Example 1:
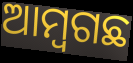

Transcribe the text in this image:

ଆମ୍ବଗଛ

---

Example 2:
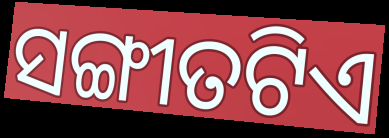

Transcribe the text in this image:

ସଙ୍ଗୀତଟିଏ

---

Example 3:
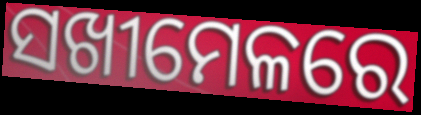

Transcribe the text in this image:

ସଖୀମେଳରେ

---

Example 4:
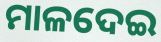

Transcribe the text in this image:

ମାଳଦେଇ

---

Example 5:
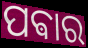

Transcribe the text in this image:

ପଵାର